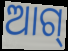
ଆଗ୍